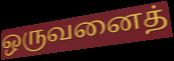
ஒருவனைத்